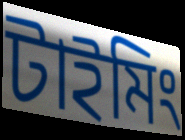
টাইমিং